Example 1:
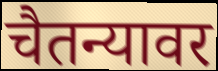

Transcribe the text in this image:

चैतन्यावर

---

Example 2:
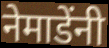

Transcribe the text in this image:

नेमाडेंनी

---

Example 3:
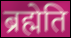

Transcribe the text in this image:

ब्रह्मेति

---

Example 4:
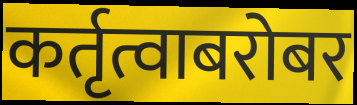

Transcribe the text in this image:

कर्तृत्वाबरोबर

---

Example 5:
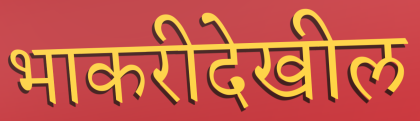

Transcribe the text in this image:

भाकरीदेखील